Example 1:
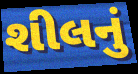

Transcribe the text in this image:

શીલનું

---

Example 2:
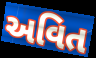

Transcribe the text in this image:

અવિત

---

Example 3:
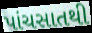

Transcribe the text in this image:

પાંચસાતથી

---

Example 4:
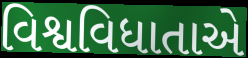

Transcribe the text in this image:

વિશ્વવિધાતાએ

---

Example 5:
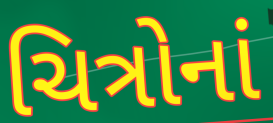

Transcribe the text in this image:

ચિત્રોનાં